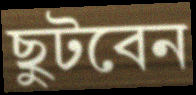
ছুটবেন